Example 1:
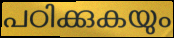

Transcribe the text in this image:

പഠിക്കുകയും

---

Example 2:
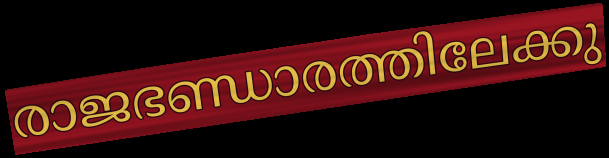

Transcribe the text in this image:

രാജഭണ്ഡാരത്തിലേക്കു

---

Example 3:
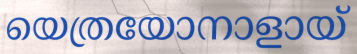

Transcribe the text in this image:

യെത്രയോനാളായ്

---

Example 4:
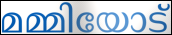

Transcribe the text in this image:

മമ്മിയോട്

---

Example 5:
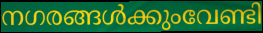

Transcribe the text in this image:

നഗരങ്ങൾക്കുംവേണ്ടി